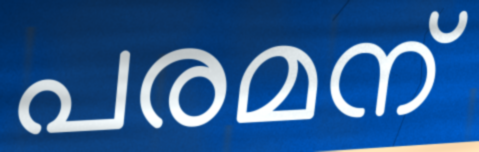
പരമന്